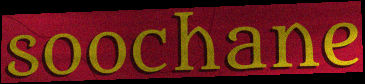
soochane